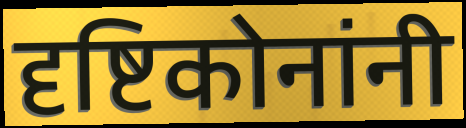
दृष्टिकोनांनी